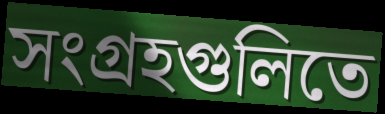
সংগ্রহগুলিতে